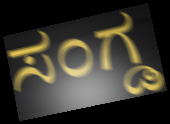
ಸಂಗ್ಡ